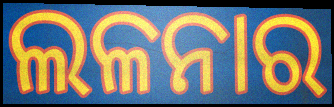
ଲଳନାର